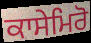
ਕਾਸੇਮਿਰੋ